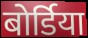
बोर्डिया